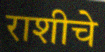
राशीचे